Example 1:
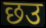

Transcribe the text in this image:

छउ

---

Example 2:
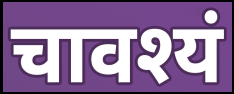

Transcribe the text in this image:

चावश्यं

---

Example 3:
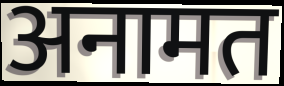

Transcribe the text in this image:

अनामत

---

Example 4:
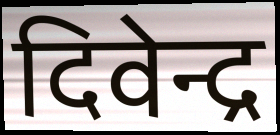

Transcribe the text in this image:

दिवेन्द्र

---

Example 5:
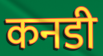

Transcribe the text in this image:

कनडी